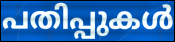
പതിപ്പുകൾ